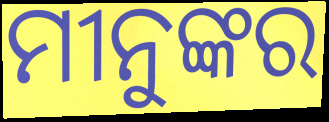
ମୀନୁଙ୍କର